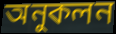
অনুকলন